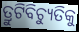
ତ୍ରୁଟିବିଚ୍ୟୁତିକୁ